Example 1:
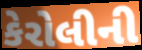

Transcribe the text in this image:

કેરોલીની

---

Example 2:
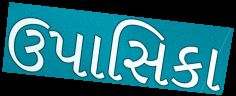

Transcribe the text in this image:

ઉપાસિકા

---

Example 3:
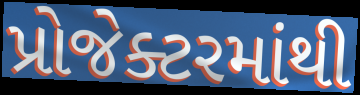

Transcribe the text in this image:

પ્રોજેક્ટરમાંથી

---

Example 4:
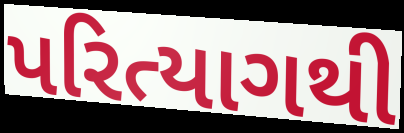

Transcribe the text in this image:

પરિત્યાગથી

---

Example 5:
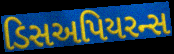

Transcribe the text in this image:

ડિસઅપિયરન્સ